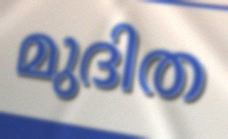
മുദിത